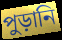
পুড়ানি